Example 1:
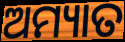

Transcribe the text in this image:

ଅମ୍ୟାତ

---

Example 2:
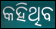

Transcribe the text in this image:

କହିଥିବ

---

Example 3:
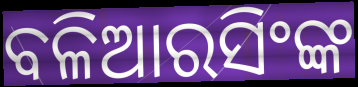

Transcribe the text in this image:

ବଳିଆରସିଂଙ୍କ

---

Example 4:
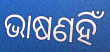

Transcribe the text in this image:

ଭାଷଣହିଁ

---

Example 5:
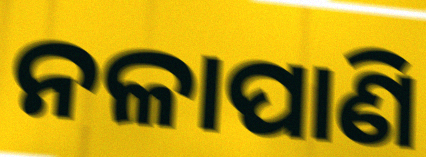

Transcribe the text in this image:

ନଳାପାଣି